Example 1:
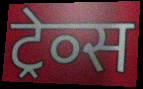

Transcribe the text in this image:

ट्रेव्स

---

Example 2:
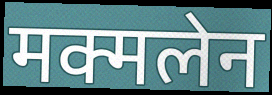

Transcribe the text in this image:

मक्मलेन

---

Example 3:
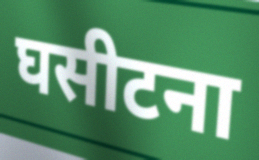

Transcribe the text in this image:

घसीटना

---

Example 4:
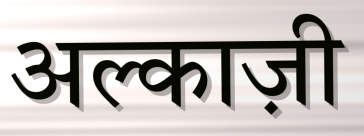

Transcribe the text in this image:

अल्काज़ी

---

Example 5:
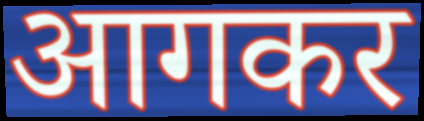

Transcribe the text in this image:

आगकर